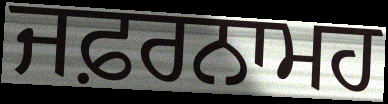
ਜਫ਼ਰਨਾਮਹ